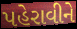
પહેરાવીને